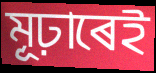
মূঢ়াৰেই